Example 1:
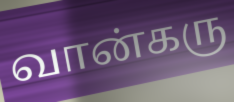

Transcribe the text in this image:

வான்கரு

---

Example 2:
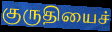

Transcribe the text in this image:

குருதியைச்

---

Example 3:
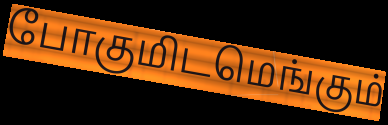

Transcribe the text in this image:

போகுமிடமெங்கும்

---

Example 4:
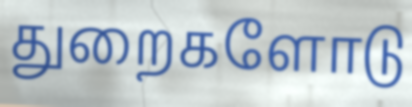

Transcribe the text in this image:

துறைகளோடு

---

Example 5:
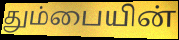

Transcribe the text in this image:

தும்பையின்